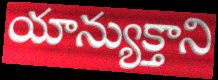
యాన్యుక్తాని